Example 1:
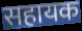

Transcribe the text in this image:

सहायक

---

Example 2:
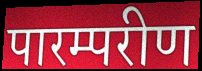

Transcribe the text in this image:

पारम्परीण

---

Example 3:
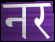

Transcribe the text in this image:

नर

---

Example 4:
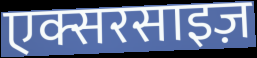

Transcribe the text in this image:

एक्सरसाइज़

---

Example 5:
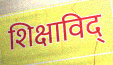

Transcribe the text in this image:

शिक्षाविद्